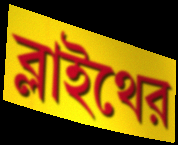
ব্লাইথের